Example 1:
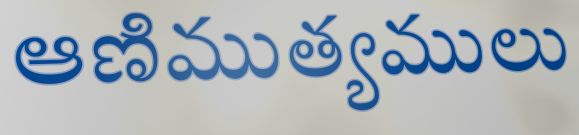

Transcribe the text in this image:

ఆణిముత్యములు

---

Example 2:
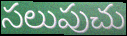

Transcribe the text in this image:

సలుపుచు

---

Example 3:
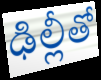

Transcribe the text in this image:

ఢిల్లీతో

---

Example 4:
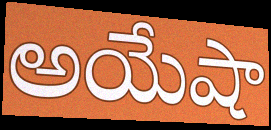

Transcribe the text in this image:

అయేషా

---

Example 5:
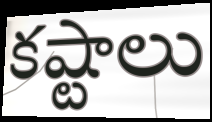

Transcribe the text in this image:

కష్టాలు